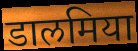
डालमिया